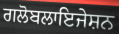
ਗਲੋਬਲਾਇਜੇਸ਼ਨ